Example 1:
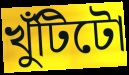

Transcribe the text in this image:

খুঁটিটো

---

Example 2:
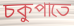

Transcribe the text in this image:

চকুপাতে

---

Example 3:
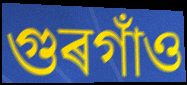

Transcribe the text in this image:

গুৰগাঁও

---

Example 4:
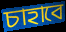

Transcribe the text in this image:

চাহাবে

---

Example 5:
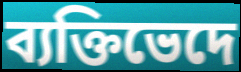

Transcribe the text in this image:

ব্যক্তিভেদে